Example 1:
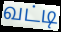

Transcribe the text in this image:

வட்டி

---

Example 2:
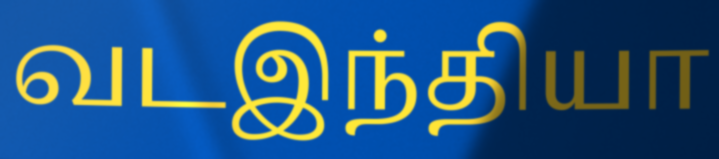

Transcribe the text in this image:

வடஇந்தியா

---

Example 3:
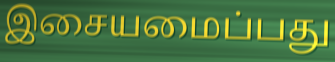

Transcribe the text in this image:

இசையமைப்பது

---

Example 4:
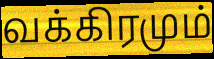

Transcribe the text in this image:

வக்கிரமும்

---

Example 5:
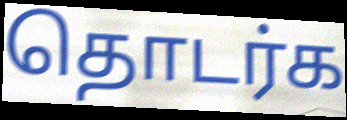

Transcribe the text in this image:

தொடர்க